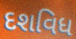
દશવિધ